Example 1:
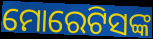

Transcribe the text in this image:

ମୋରେଟିସଙ୍କ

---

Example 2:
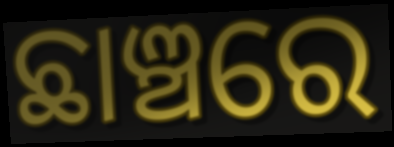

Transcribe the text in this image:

ଛାଞ୍ଚରେ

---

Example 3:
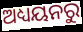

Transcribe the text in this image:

ଅଧ୍ୟୟନରୁ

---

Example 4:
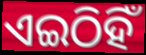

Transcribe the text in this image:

ଏଇଠିହିଁ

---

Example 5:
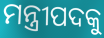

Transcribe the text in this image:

ମନ୍ତ୍ରୀପଦକୁ